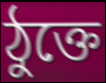
ঠুক্তে